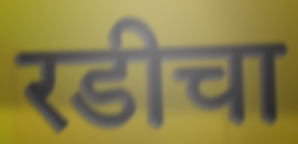
रडीचा